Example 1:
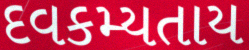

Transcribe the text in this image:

દવકમ્યતાય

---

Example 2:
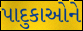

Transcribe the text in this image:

પાદુકાઓને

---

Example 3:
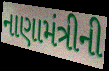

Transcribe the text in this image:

નાણામંત્રીની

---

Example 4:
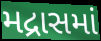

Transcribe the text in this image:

મદ્રાસમાં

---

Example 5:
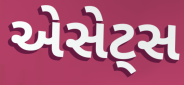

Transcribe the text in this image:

એસેટ્સ